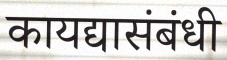
कायद्यासंबंधी